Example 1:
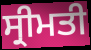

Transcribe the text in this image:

ਸ੍ਰੀਮਤੀ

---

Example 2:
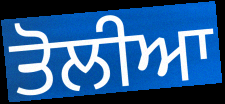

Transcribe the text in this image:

ਤੋਲੀਆ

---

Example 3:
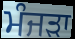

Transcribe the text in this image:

ਮੰਜੜਾ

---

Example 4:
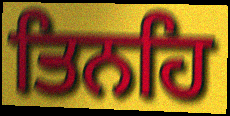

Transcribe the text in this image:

ਤਿਨਹਿ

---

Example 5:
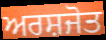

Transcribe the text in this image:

ਅਰਸ਼ਜੋਤ